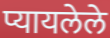
प्यायलेले